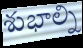
శుభాల్ని